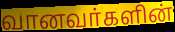
வானவர்களின்